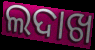
ଲଦାଖ